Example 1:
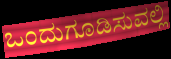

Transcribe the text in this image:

ಒಂದುಗೂಡಿಸುವಲ್ಲಿ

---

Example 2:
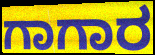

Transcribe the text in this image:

ಗಾಗಾರ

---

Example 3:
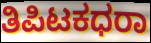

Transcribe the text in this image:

ತಿಪಿಟಕಧರಾ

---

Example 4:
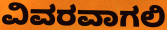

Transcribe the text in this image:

ವಿವರವಾಗಲಿ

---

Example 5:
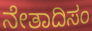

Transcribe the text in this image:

ನೇತಾದಿಸಂ